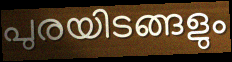
പുരയിടങ്ങളും